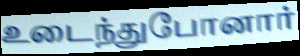
உடைந்துபோனார்